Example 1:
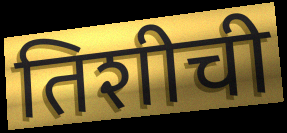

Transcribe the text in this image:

तिशीची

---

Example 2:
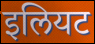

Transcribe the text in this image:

इलियट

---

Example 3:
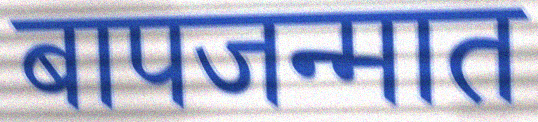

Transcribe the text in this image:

बापजन्मात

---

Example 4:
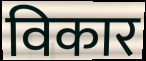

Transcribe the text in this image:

विकार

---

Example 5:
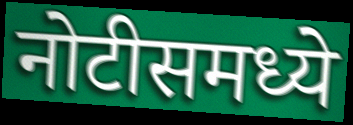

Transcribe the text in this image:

नोटीसमध्ये